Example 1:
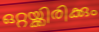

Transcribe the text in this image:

ഒറ്റയ്ക്കിരിക്കും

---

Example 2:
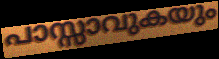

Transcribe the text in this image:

പാസ്സാവുകയും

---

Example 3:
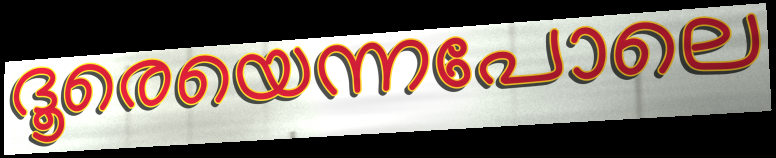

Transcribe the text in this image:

ദൂരെയെന്നപോലെ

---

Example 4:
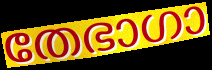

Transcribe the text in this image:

തേഭാഗാ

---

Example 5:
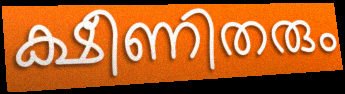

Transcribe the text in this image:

ക്ഷീണിതരും